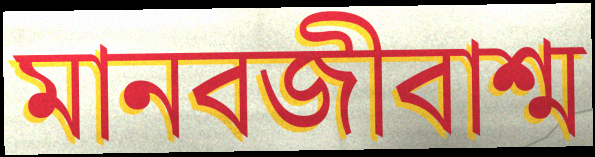
মানবজীবাশ্ম